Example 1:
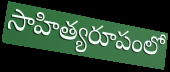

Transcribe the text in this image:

సాహిత్యరూపంలో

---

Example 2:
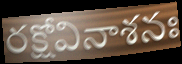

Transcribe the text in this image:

రక్షోవినాశనః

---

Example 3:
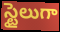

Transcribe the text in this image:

స్టైలుగా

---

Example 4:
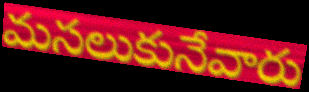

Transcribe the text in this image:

మసలుకునేవారు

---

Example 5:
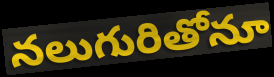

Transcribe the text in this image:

నలుగురితోనూ